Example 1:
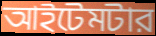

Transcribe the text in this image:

আইটেমটার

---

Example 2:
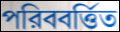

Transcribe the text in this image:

পরিববর্ত্তিত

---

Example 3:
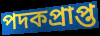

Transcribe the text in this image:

পদকপ্রাপ্ত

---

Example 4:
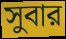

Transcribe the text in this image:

সুবার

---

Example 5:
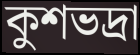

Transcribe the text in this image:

কুশভদ্রা